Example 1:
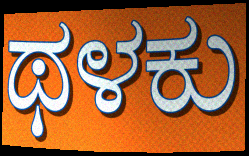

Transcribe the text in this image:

ಥಳಕು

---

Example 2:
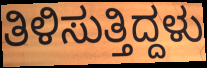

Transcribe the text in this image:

ತಿಳಿಸುತ್ತಿದ್ದಳು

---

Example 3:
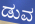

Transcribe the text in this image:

ಡುವ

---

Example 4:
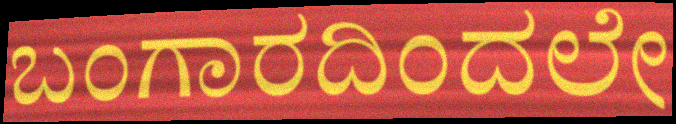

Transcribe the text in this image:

ಬಂಗಾರದಿಂದಲೇ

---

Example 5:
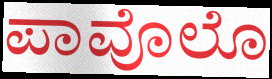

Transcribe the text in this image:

ಪಾವೊಲೊ